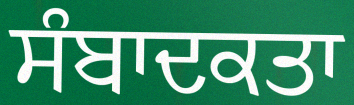
ਸੰਬਾਦਕਤਾ